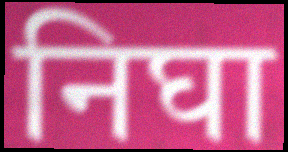
निघा